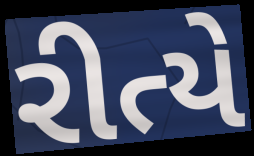
રીત્યે